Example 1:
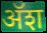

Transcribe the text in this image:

ॲश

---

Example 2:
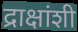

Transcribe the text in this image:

द्राक्षांशी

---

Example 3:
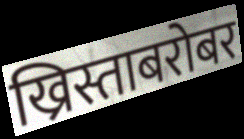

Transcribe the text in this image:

ख्रिस्ताबरोबर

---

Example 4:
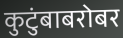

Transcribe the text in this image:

कुटुंबाबरोबर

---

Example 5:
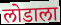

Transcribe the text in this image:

लोडाला